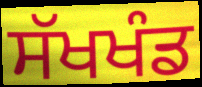
ਸੱਖਖੰਡ